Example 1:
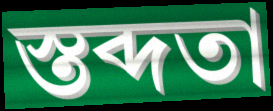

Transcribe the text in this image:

স্তব্দতা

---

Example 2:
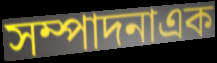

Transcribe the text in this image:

সম্পাদনাএক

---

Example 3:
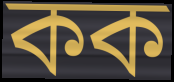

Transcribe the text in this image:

কক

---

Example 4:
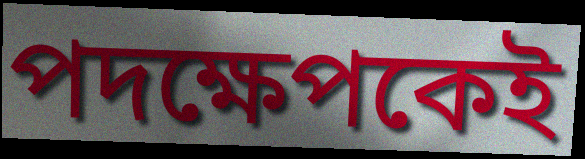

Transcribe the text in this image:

পদক্ষেপকেই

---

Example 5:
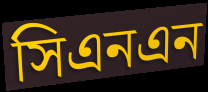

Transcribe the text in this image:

সিএনএন